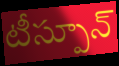
టీస్పూన్